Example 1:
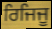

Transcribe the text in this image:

ਰਿਜਿਜੂ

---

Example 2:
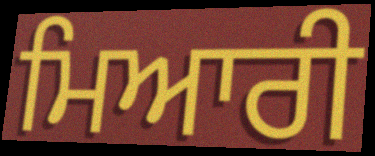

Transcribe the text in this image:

ਮਿਆਰੀ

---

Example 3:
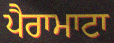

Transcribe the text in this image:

ਪੈਰਾਮਾਟਾ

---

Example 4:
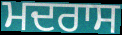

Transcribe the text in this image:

ਮਦਰਾਸ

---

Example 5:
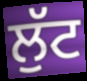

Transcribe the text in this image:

ਲੁੱਟ